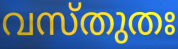
വസ്തുതഃ